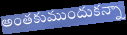
అంతకుముందుకన్నా